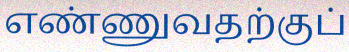
எண்ணுவதற்குப்